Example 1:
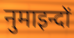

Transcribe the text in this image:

नुमाइन्दों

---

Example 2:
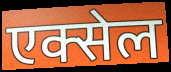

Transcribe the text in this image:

एक्सेल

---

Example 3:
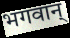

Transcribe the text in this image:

भगवान्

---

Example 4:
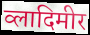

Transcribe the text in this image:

व्लादिमीर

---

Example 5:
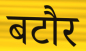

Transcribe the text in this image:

बटौर